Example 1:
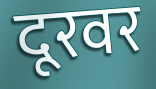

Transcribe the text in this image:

दूरवर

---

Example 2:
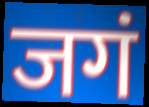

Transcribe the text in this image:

जगं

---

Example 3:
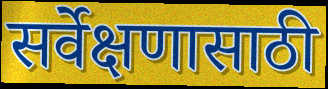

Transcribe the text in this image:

सर्वेक्षणासाठी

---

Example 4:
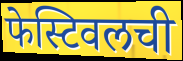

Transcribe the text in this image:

फेस्टिवलची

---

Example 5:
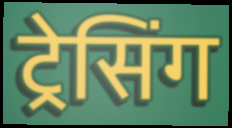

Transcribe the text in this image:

ट्रेसिंग